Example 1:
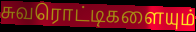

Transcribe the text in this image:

சுவரொட்டிகளையும்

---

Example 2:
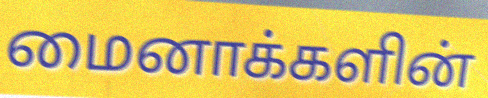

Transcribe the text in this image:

மைனாக்களின்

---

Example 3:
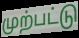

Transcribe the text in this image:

முற்பட்டு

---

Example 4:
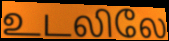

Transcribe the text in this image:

உடலிலே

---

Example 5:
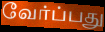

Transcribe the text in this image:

வேர்ப்பது